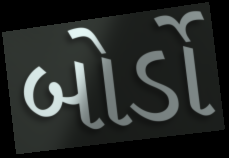
બોર્ડો